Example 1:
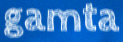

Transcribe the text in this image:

gamta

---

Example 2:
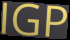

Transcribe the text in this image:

IGP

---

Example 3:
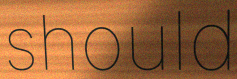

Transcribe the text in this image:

should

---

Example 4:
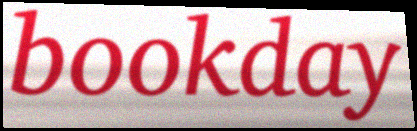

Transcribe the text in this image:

bookday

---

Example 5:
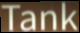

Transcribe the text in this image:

Tank